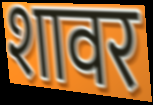
शावर